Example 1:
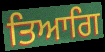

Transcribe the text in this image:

ਤਿਆਗਿ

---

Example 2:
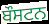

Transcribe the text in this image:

ਬੌਸਟਨ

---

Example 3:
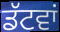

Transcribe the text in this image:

ਡੱਟਵਾਂ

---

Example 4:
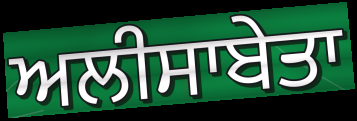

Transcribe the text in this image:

ਅਲੀਸਾਬੇਤਾ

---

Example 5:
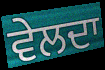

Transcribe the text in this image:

ਵੇਲਦਾ